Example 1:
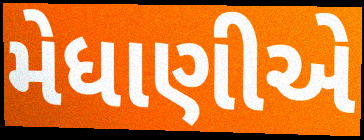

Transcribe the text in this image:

મેધાણીએ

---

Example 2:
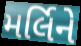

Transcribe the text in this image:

મર્લિને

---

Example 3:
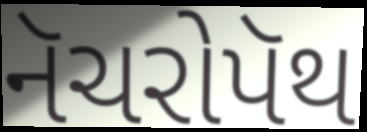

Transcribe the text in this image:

નૅચરોપૅથ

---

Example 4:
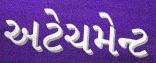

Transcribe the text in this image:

અટેચમેન્ટ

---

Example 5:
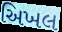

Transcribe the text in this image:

અિખલ